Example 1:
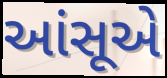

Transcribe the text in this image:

આંસૂએ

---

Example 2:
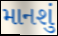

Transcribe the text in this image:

માનશું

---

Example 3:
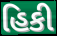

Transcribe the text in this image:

હિકી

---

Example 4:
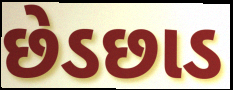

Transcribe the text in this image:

છેડછાડ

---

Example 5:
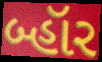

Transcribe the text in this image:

બ્હૉર